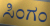
ಸಿಂಗಂ